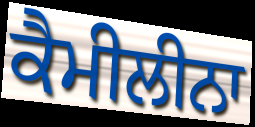
ਕੈਮੀਲੀਨਾ